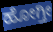
ಹೋಗ್ತೀ